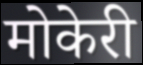
मोकेरी